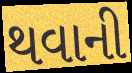
થવાની